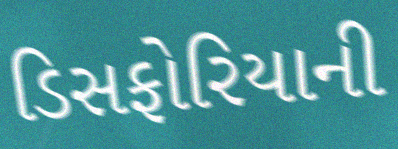
ડિસફોરિયાની